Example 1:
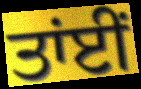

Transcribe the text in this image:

ਤਾਂਈਂ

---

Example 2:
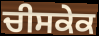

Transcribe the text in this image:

ਚੀਸਕੇਕ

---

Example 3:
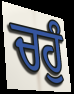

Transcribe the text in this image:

ਚਹੁੰ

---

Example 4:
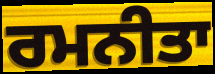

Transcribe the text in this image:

ਰਮਨੀਤਾ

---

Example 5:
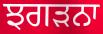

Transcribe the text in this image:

ਝਗੜਨਾ